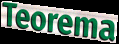
Teorema